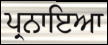
ਪ੍ਰਨਾਇਆ